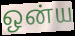
ஒன்ய